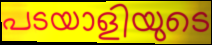
പടയാളിയുടെ